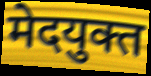
मेदयुक्त